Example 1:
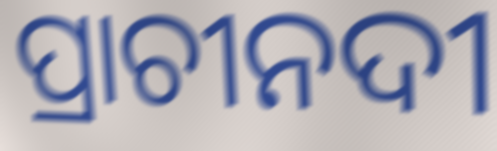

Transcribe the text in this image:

ପ୍ରାଚୀନଦୀ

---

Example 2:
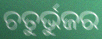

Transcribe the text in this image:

ଚତୁର୍ଭୁଜର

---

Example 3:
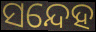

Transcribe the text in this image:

ସନ୍ଦେହ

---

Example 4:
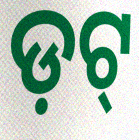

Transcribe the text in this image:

ଡ଼ଟ୍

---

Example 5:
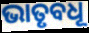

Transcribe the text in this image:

ଭାତୃବଧୂ